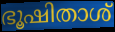
ഭൂഷിതാശ്